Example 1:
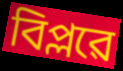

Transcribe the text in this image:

বিপ্লৱে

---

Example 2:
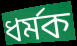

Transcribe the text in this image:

ধৰ্মক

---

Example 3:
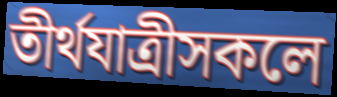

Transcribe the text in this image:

তীৰ্থযাত্ৰীসকলে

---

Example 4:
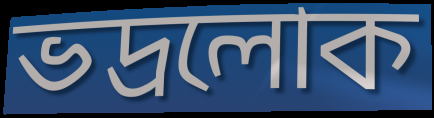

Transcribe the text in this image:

ভদ্ৰলোক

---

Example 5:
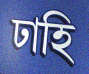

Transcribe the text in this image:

ঢাহি